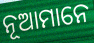
ନୂଆମାନେ